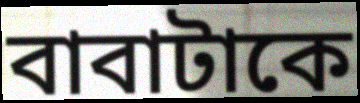
বাবাটাকে